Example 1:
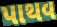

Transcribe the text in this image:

પાથવ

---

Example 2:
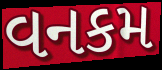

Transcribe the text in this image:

વનકમ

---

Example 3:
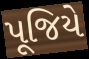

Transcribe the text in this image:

પૂજિયે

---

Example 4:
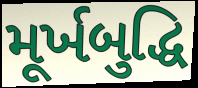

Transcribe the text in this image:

મૂર્ખબુદ્ધિ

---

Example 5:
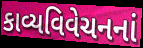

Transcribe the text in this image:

કાવ્યવિવેચનનાં